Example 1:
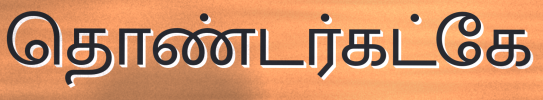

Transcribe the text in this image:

தொண்டர்கட்கே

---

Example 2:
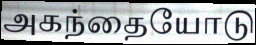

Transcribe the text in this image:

அகந்தையோடு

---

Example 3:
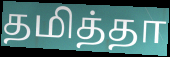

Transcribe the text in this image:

தமித்தா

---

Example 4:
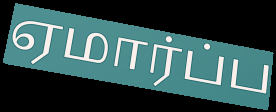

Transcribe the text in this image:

ஏமார்ப்ப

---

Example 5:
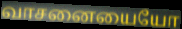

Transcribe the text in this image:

வாசனையையோ